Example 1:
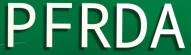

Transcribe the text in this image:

PFRDA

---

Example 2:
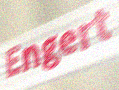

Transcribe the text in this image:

Engert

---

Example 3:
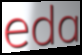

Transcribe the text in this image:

eda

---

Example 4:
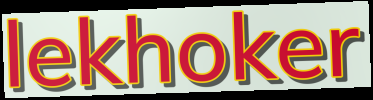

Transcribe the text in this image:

lekhoker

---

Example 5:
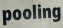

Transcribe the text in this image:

pooling